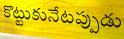
కొట్టుకునేటప్పుడు